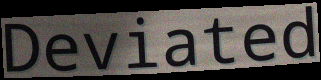
Deviated